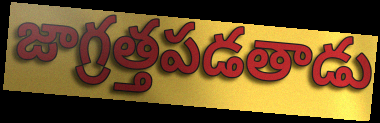
జాగ్రత్తపడతాడు